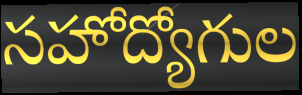
సహోద్యోగుల